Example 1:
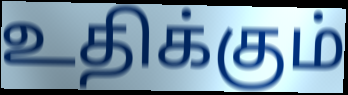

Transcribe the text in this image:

உதிக்கும்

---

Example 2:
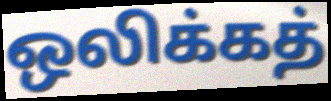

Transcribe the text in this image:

ஒலிக்கத்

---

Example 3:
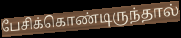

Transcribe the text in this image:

பேசிக்கொண்டிருந்தால்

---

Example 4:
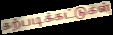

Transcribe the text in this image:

கற்படிக்கட்டுகள்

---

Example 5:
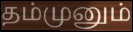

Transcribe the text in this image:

தம்முனும்